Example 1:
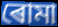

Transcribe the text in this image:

ৰোমা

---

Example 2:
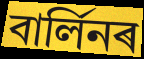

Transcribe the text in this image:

বাৰ্লিনৰ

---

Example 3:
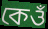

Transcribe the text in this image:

কেওঁ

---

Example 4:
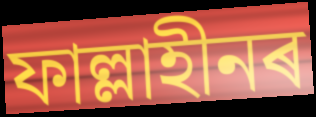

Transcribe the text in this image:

ফাল্লাহীনৰ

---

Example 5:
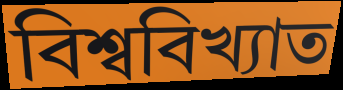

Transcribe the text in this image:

বিশ্ববিখ্যাত